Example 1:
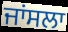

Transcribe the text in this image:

ਜਾਂਸਲਾ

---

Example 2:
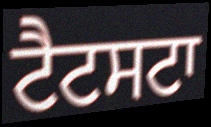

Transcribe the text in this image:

ਟੈਟਸਟਾ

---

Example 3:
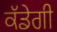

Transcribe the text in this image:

ਕੱਡੇਗੀ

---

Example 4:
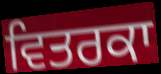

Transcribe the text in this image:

ਵਿਤਰਕਾ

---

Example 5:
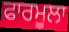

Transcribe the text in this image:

ਫਾਰਮੂਲਾ